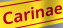
Carinae